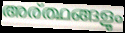
അര്ത്ഥങ്ങളും